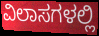
ವಿಲಾಸಗಳಲ್ಲಿ